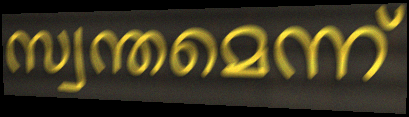
സ്വന്തമെന്ന്